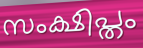
സംക്ഷിപ്തം